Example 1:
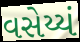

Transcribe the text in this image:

વસેય્યં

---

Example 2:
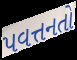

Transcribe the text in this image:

પવત્તનતો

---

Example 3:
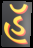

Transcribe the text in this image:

હૅ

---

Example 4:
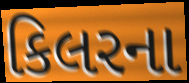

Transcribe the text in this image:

કિલરના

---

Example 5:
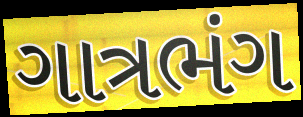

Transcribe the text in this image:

ગાત્રભંગ